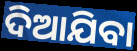
ଦିଆଯିବା